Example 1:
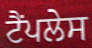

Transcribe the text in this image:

ਟੈਂਪਲੇਸ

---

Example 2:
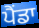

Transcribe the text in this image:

ਪੈਂਡਾ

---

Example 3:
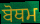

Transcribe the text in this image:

ਬੋਥਮ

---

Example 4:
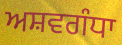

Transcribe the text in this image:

ਅਸ਼ਵਗੰਧਾ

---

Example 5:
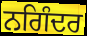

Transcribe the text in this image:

ਨਗਿੰਦਰ